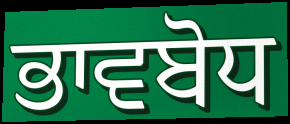
ਭਾਵਬੋਧ